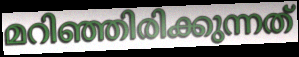
മറിഞ്ഞിരിക്കുന്നത്